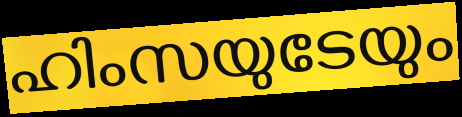
ഹിംസയുടേയും